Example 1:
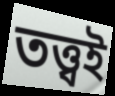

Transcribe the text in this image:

তত্ত্বই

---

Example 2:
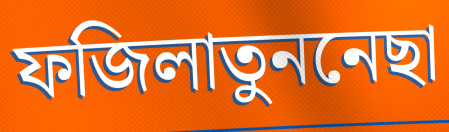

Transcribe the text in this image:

ফজিলাতুননেছা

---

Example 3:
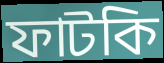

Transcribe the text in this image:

ফাটকি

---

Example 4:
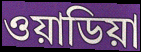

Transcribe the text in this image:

ওয়াডিয়া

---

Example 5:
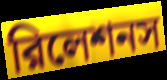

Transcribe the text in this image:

রিলেশনস